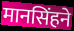
मानसिंहने